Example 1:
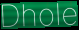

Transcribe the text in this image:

Dhole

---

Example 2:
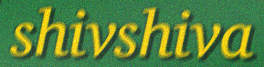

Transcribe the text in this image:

shivshiva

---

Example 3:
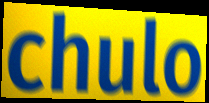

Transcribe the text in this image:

chulo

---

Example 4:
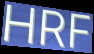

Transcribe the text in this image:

HRF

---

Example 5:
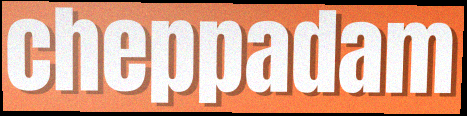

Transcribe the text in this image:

cheppadam